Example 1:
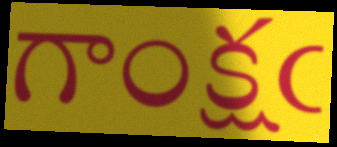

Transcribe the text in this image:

గాంక్షఁ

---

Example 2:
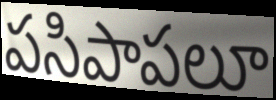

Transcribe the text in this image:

పసిపాపలూ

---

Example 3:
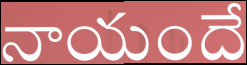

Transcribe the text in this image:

నాయందే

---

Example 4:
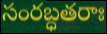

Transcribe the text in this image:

సంరబ్ధతరాః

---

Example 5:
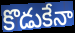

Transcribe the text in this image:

కొడుకేనా